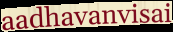
aadhavanvisai